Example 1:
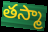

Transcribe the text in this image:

తస్మా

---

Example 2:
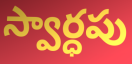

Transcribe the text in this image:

స్వార్ధపు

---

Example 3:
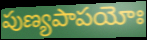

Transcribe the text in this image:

పుణ్యపాపయోః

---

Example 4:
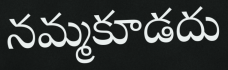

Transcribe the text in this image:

నమ్మకూడదు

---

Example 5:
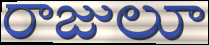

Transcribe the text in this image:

రాజులూ